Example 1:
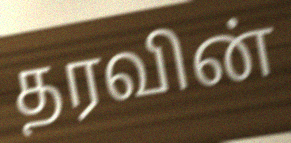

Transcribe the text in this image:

தரவின்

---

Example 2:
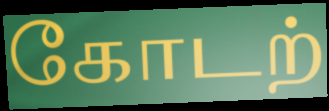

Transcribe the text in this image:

கோடற்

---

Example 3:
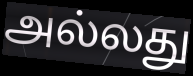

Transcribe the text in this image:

அல்லது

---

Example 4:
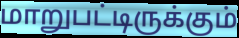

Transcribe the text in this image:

மாறுபட்டிருக்கும்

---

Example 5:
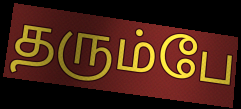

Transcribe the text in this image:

தரும்பே